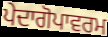
ਪੇਦਾਗੋਪਾਵਰਮ